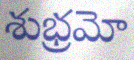
శుభ్రమో